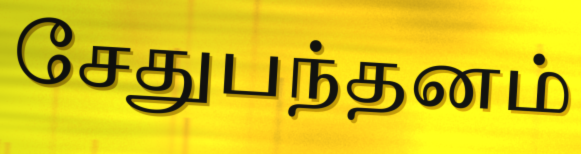
சேதுபந்தனம்